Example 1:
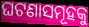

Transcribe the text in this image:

ଘଟଣାସମୂହକୁ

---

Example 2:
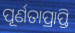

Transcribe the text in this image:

ପୂର୍ଣତାପ୍ରାପ୍ତି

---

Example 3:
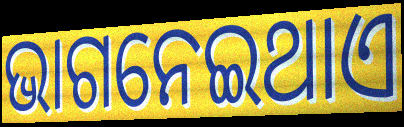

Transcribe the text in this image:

ଭାଗନେଇଥାଏ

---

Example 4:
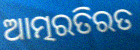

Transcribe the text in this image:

ଆତ୍ମରତିରତ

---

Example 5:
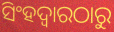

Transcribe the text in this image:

ସିଂହଦ୍ୱାରଠାରୁ